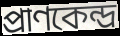
প্রাণকেন্দ্র